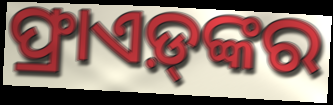
ଫ୍ରାଏଡ଼୍‍ଙ୍କର